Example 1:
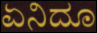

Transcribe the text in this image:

ಏನಿದೂ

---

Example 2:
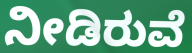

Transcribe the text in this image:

ನೀಡಿರುವೆ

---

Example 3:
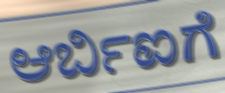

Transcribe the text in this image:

ಆರ್ಬಿಐಗೆ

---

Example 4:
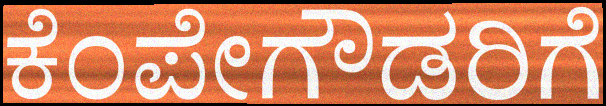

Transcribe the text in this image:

ಕೆಂಪೇಗೌಡರಿಗೆ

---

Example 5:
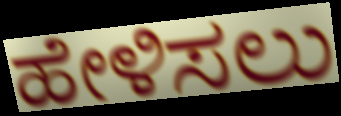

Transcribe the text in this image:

ಹೇಳಿಸಲು